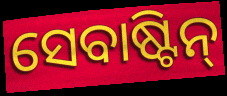
ସେବାଷ୍ଟିନ୍